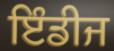
ਇੰਡੀਜ